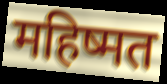
महिष्मत